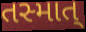
તસ્માત્